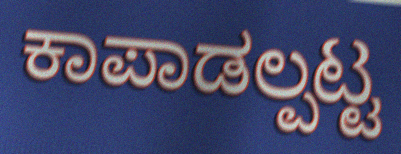
ಕಾಪಾಡಲ್ಪಟ್ಟ